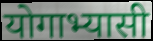
योगाभ्यासी